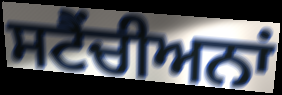
ਸਟੈਂਚੀਅਨਾਂ